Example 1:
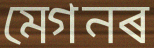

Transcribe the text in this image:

মেগনৰ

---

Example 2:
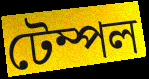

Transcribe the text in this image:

টেম্পল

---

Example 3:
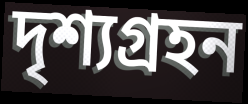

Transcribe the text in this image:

দৃশ্যগ্ৰহন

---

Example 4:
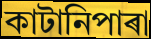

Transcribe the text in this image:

কাটানিপাৰা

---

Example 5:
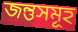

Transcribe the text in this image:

জন্তুসমূহ